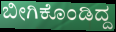
ಬೀಗಿಕೊಂಡಿದ್ದ